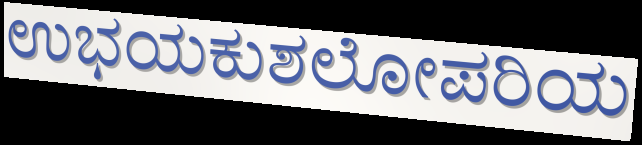
ಉಭಯಕುಶಲೋಪರಿಯ